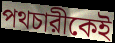
পথচারীকেই